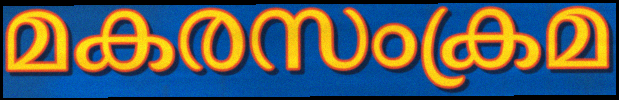
മകരസംക്രമ